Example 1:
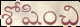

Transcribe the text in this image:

శోషించి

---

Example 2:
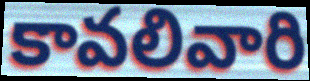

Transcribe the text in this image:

కావలివారి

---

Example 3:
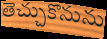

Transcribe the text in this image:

తెచ్చుకొనును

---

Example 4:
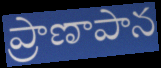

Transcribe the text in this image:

ప్రాణాపాన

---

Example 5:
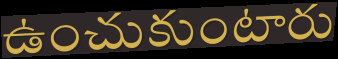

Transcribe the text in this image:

ఉంచుకుంటారు